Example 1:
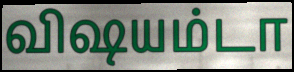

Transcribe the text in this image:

விஷயம்டா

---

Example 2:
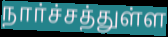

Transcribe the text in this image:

நார்ச்சத்துள்ள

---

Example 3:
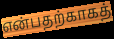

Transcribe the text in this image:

என்பதற்காகத்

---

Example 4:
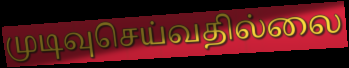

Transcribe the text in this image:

முடிவுசெய்வதில்லை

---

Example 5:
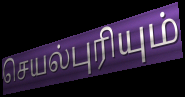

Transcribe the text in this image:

செயல்புரியும்